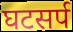
घटसर्प